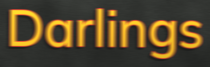
Darlings